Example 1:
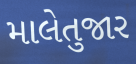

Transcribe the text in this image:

માલેતુજાર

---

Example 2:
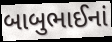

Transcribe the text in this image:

બાબુભાઈનાં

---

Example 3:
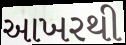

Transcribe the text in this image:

આખરથી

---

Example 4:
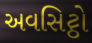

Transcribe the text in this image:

અવસિટ્ઠો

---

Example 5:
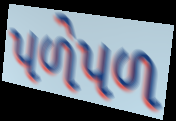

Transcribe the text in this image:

પળેપળ